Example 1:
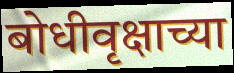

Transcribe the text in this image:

बोधीवृक्षाच्या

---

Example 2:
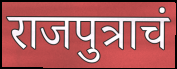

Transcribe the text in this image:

राजपुत्राचं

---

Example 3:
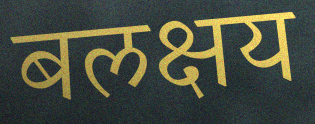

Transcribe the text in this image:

बलक्षय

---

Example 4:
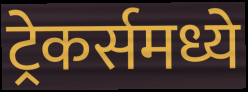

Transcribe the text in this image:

ट्रेकर्समध्ये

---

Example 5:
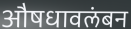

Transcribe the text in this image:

औषधावलंबन